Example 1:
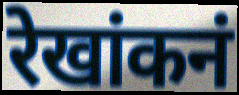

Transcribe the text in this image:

रेखांकनं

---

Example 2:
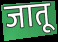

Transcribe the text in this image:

जातू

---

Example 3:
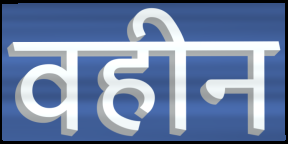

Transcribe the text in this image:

वहीन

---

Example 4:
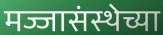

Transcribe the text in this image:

मज्जासंस्थेच्या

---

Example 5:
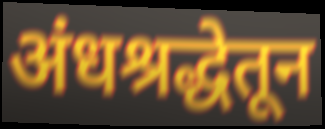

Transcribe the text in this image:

अंधश्रद्धेतून